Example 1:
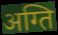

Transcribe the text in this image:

अग्ति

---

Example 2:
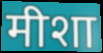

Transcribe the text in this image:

मीशा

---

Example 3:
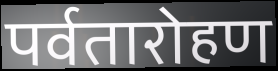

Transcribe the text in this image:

पर्वतारोहण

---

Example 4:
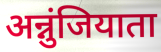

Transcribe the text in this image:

अन्नुंजियाता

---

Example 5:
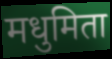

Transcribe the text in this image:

मधुमिता